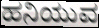
ಹನಿಯುವ